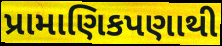
પ્રામાણિકપણાથી